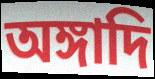
অঙ্গাদি